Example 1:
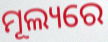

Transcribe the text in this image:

ମୂଲ୍ୟରେ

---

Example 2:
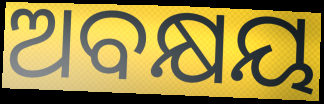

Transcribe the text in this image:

ଅବକ୍ଷୟ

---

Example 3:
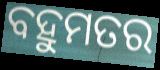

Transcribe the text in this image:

ବହୁମତର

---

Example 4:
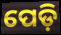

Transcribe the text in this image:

ପେଡ଼ି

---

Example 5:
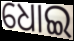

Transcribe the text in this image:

ଧୋଇ